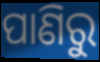
ପାଣିରୁ